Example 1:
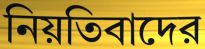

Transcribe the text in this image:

নিয়তিবাদের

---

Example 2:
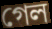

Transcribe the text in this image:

গেল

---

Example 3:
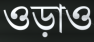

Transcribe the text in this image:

ওড়াও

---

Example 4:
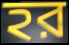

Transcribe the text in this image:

হর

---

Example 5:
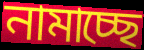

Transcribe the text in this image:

নামাচ্ছে